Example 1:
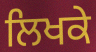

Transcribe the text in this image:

ਲਿਖਕੇ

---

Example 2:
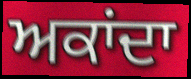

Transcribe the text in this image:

ਅਕਾਂਦਾ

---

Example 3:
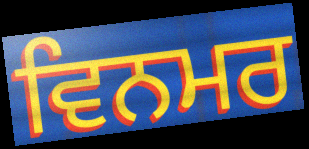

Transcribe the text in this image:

ਵਿਨਮਰ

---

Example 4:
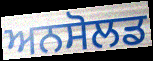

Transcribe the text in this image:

ਅਨਸੋਲਡ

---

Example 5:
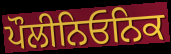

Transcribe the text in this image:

ਪੌਲੀਨਿਓਨਿਕ